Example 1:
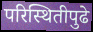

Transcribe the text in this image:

परिस्थितीपुढे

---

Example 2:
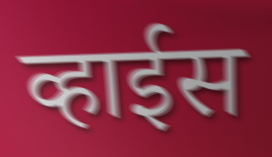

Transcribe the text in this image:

व्हाईस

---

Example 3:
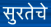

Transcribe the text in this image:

सुरतेचे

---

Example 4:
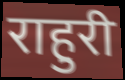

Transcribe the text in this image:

राहुरी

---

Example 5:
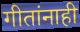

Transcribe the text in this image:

गीतांनाही